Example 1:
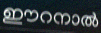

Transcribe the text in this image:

ഈറനാൽ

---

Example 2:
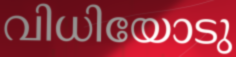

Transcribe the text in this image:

വിധിയോടു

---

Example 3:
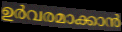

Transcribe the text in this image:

ഉർവരമാക്കാൻ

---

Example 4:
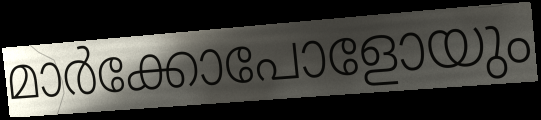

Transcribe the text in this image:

മാർക്കോപോളോയും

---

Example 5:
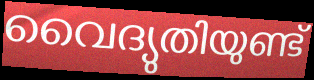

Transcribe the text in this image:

വൈദ്യുതിയുണ്ട്